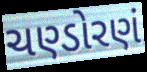
ચણ્ડોરણં